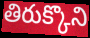
తిరుక్కొని